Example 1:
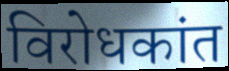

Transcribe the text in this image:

विरोधकांत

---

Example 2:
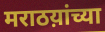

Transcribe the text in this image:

मराठय़ांच्या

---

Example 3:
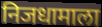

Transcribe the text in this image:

निजधामाला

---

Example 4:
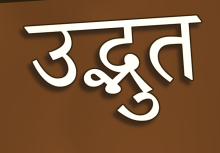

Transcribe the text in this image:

उद्भुत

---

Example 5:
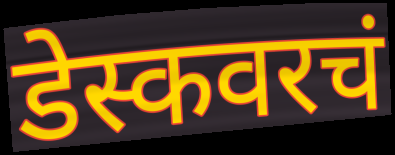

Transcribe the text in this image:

डेस्कवरचं